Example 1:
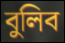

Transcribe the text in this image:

বুলিব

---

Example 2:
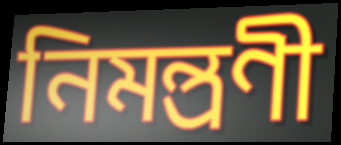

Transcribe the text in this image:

নিমন্ত্ৰণী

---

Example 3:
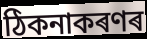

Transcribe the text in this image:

ঠিকনাকৰণৰ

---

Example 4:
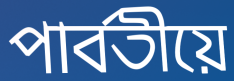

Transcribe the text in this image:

পাৰ্বতীয়ে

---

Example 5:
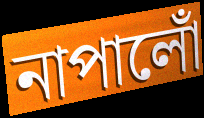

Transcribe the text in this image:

নাপালোঁ